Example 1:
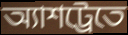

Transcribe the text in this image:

অ্যাশট্রেতে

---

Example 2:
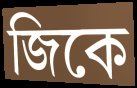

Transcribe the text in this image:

জিকে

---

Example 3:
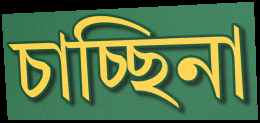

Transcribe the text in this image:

চাচ্ছিনা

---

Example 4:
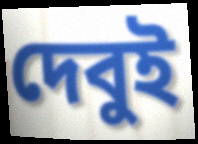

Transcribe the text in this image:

দেবুই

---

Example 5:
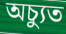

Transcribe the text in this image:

অচ্যুত